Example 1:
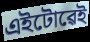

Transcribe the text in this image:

এইটোৱেই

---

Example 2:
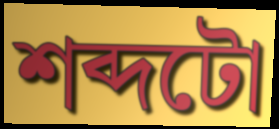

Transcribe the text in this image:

শব্দটো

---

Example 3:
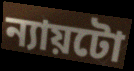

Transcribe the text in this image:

ন্যায়টো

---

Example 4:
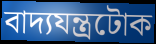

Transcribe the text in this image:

বাদ্যযন্ত্ৰটোক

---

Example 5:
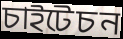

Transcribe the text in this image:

চাইটেচন